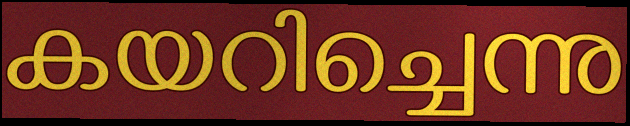
കയറിച്ചെന്നു